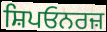
ਸ਼ਿਪਓਨਰਜ਼